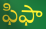
ఫిఫా